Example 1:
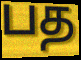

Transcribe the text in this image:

பத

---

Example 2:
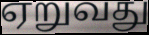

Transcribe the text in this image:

ஏறுவது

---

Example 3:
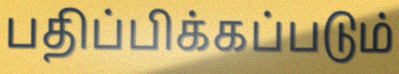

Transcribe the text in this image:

பதிப்பிக்கப்படும்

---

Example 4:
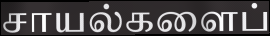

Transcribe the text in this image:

சாயல்களைப்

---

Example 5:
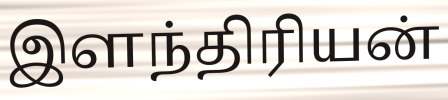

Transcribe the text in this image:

இளந்திரியன்